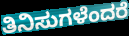
ತಿನಿಸುಗಳೆಂದರೆ